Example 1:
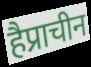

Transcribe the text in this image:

हैप्राचीन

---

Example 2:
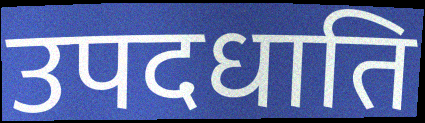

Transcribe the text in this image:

उपदधाति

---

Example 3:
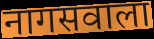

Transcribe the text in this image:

नागसवाला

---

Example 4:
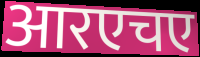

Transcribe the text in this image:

आरएचए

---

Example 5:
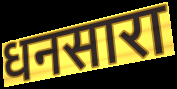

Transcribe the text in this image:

धनसारा